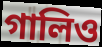
গালিও